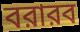
বরারব